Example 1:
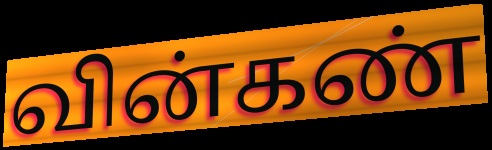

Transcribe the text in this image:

வின்கண்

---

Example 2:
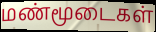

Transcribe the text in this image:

மண்மூடைகள்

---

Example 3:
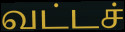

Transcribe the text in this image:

வட்டச்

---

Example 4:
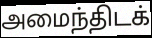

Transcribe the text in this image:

அமைந்திடக்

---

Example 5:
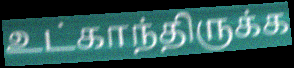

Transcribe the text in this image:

உட்காந்திருக்க